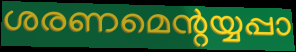
ശരണമെന്റയ്യപ്പാ